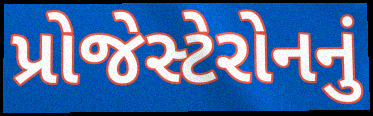
પ્રોજેસ્ટેરોનનું